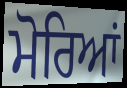
ਮੋਰਿਆਂ